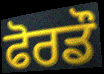
ਫੋਰਡੌ